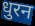
धुरन